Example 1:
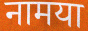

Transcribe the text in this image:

नामया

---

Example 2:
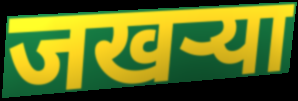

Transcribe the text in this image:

जखऱ्या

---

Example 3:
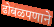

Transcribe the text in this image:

ढोबळपणाने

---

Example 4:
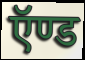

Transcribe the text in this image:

ऍण्ड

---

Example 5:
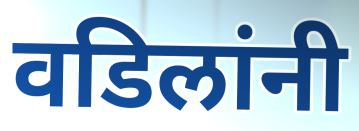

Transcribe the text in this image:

वडिलांनी